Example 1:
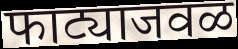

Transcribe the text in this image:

फाट्याजवळ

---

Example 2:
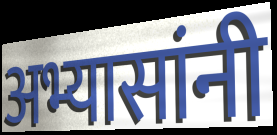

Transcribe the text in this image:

अभ्यासांनी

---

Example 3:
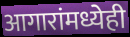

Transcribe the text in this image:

आगारांमध्येही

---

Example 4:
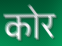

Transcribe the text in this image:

कोर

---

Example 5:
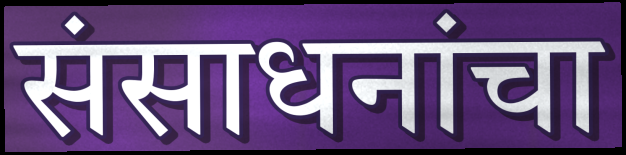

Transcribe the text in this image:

संसाधनांचा